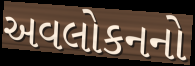
અવલોકનનો